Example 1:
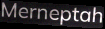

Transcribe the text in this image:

Merneptah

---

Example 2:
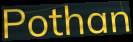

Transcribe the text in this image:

Pothan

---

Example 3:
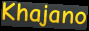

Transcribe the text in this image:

Khajano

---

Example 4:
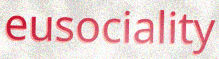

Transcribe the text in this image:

eusociality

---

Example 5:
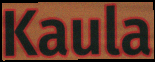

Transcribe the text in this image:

Kaula